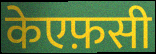
केएफ़सी